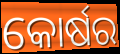
କୋର୍ଷର